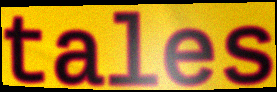
tales